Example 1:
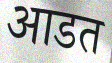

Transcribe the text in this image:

आडत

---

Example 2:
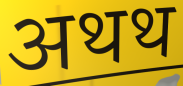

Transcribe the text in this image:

अथथ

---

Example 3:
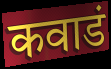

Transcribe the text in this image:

कवाडं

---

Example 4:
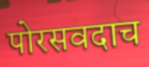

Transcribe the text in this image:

पोरसवदाच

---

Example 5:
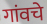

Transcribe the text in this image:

गांवचे